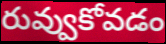
రువ్వుకోవడం